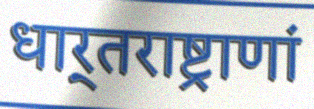
धार्तराष्ट्राणां